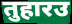
तुहारउ